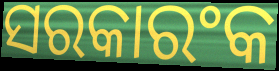
ସରକାରଂକ